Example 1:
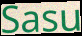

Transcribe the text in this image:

Sasu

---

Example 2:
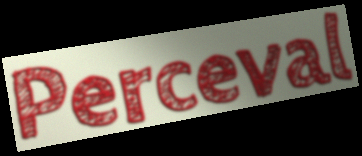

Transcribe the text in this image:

Perceval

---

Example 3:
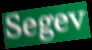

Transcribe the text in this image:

Segev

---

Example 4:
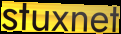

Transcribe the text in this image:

stuxnet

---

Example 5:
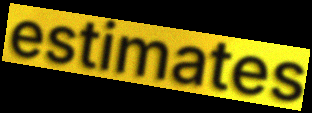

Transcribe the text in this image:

estimates